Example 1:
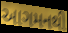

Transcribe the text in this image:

આગમનથી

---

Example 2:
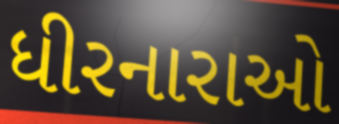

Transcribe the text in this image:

ધીરનારાઓ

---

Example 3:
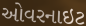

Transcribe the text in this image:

ઓવરનાઇટ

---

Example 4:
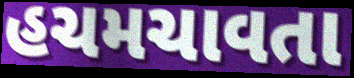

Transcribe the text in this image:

હચમચાવતા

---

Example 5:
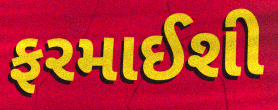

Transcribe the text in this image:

ફરમાઈશી